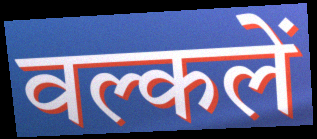
वल्कलें